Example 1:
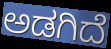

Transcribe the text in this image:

ಅಡಗಿದೆ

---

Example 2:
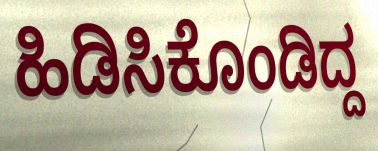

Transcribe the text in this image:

ಹಿಡಿಸಿಕೊಂಡಿದ್ದ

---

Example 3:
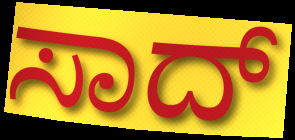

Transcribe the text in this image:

ಸಾದ್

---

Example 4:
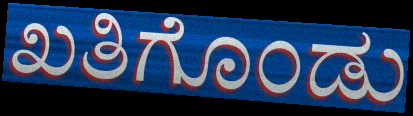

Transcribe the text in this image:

ಖತಿಗೊಂಡು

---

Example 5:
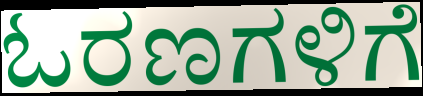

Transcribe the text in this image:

ಓರಣಗಳಿಗೆ